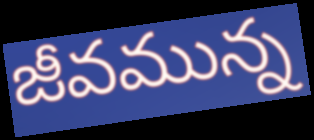
జీవమున్న